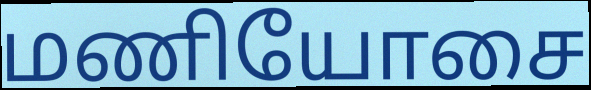
மணியோசை